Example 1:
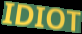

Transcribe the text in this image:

IDIOT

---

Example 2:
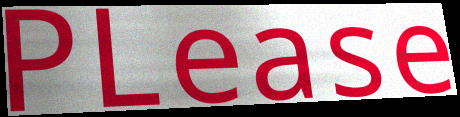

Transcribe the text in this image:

PLease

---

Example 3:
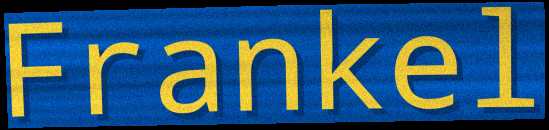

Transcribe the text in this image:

Frankel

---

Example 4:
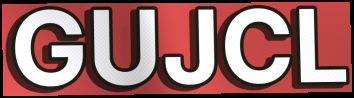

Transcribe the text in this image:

GUJCL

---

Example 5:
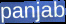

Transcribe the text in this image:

panjab